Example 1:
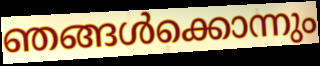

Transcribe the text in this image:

ഞങ്ങൾക്കൊന്നും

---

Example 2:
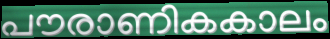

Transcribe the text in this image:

പൗരാണികകാലം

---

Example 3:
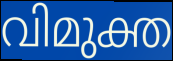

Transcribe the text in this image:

വിമുക്ത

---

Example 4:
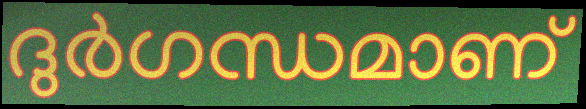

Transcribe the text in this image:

ദുർഗന്ധമാണ്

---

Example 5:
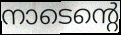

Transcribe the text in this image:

നാടെന്റെ